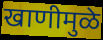
खाणीमुळे